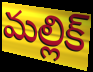
మల్లిక్